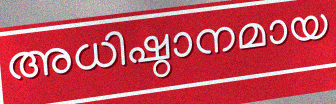
അധിഷ്ഠാനമായ